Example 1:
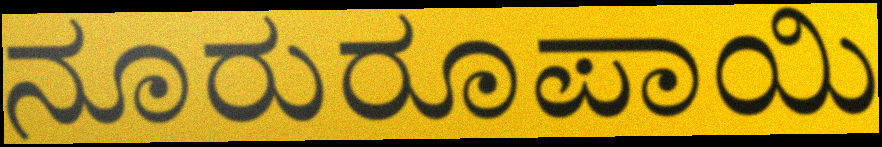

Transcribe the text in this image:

ನೂರುರೂಪಾಯಿ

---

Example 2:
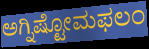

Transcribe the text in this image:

ಅಗ್ನಿಷ್ಟೋಮಫಲಂ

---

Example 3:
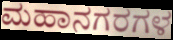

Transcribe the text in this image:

ಮಹಾನಗರಗಳ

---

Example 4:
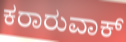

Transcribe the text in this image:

ಕರಾರುವಾಕ್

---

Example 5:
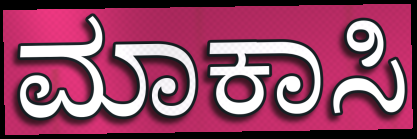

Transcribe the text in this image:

ಮಾಕಾಸಿ